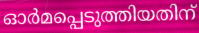
ഓർമപ്പെടുത്തിയതിന്